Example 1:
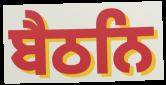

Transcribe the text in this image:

ਬੈਠਨਿ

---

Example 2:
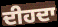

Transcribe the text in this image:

ਦੀਹਦਾ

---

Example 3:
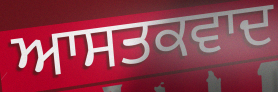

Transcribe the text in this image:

ਆਸਤਕਵਾਦ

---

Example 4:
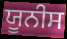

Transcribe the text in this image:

ਯੂਨੀਸ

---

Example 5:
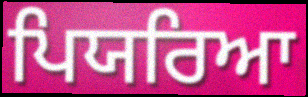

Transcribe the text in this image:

ਪਿਯਰਿਆ